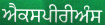
ਐਕਸਪੀਰੀਅੰਸ